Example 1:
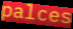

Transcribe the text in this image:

palces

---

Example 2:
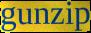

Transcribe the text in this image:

gunzip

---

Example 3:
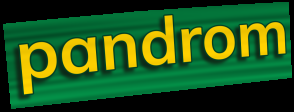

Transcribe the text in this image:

pandrom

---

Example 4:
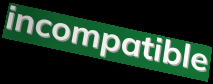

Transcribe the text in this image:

incompatible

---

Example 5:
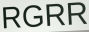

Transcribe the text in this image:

RGRR